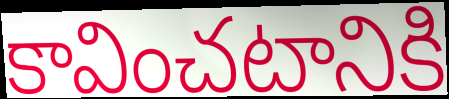
కావించటానికి